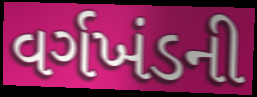
વર્ગખંડની